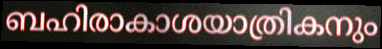
ബഹിരാകാശയാത്രികനും